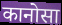
कानोसा